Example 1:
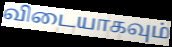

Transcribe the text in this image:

விடையாகவும்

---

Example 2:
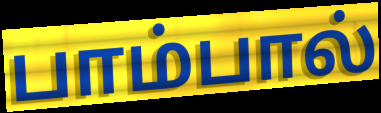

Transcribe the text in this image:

பாம்பால்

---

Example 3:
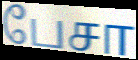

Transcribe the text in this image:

பேசா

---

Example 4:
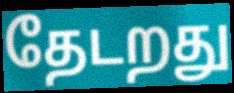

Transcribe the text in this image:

தேடறது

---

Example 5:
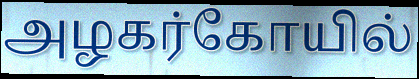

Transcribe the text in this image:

அழகர்கோயில்